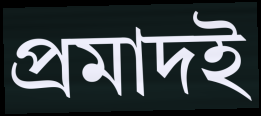
প্রমাদই